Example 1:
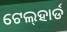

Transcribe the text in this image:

ଟେଲ୍‍ହାର୍ଡ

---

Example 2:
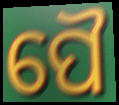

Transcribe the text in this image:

ପୈ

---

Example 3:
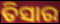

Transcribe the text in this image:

ତିସାର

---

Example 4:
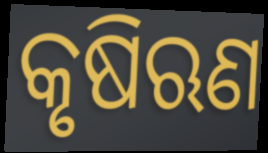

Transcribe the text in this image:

କୃଷିଋଣ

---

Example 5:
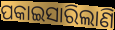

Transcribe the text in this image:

ପକାଇସାରିଲାଣି